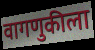
वागणुकीला